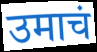
उमाचं